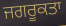
ਜਗਰੂਕਤਾ